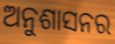
ଅନୁଶାସନର